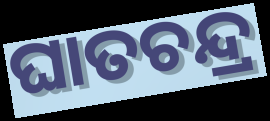
ଘାତଚନ୍ଦ୍ର